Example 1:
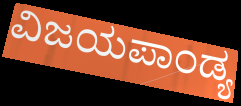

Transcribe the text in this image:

ವಿಜಯಪಾಂಡ್ಯ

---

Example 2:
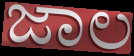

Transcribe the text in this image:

ಜಾಲ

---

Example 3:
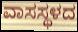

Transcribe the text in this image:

ವಾಸಸ್ಥಳದ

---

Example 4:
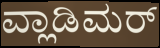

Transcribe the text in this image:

ವ್ಲಾಡಿಮರ್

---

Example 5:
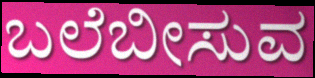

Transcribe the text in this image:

ಬಲೆಬೀಸುವ